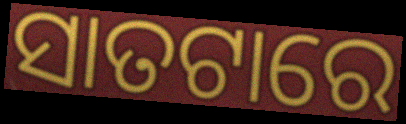
ସାତଟାରେ